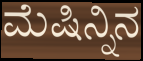
ಮೆಷಿನ್ನಿನ